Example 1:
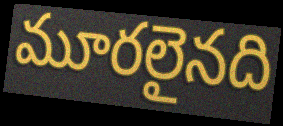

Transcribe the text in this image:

మూరలైనది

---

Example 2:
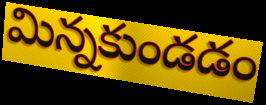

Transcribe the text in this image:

మిన్నకుండడం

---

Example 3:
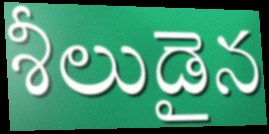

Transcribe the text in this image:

శీలుడైన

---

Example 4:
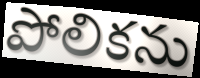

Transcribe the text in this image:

పోలికను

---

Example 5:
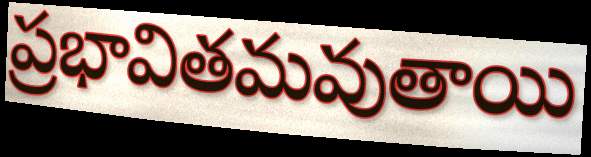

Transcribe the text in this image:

ప్రభావితమవుతాయి